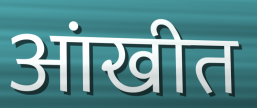
आंखीत